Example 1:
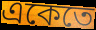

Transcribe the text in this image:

একেতে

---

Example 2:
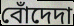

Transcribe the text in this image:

বোঁদেদা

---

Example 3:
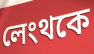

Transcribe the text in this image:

লেংথকে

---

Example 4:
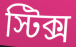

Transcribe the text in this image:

স্টিক্স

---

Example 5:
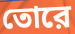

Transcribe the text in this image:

তোরে